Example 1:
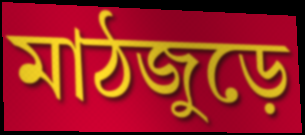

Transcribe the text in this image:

মাঠজুড়ে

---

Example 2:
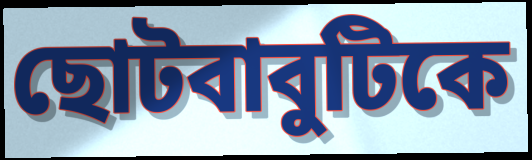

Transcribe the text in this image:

ছোটবাবুটিকে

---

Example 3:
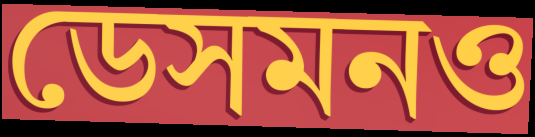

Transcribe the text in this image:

ডেসমনও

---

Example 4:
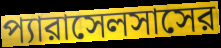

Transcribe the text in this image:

প্যারাসেলসাসের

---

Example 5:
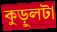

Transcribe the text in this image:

কুড়ুলটা